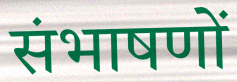
संभाषणों